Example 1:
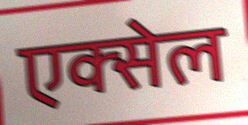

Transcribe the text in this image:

एक्‍सेल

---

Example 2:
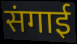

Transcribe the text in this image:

संगाई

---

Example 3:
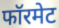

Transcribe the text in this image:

फॉरमेट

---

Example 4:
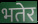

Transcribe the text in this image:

भतेर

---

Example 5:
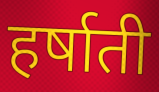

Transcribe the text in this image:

हर्षाती